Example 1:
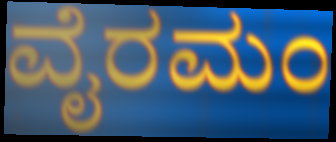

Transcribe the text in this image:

ವೈರಮಂ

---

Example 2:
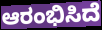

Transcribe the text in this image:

ಆರಂಭಿಸಿದೆ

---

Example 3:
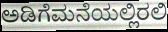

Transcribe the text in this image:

ಅಡಿಗೆಮನೆಯಲ್ಲಿರಲಿ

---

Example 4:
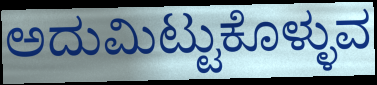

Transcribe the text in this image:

ಅದುಮಿಟ್ಟುಕೊಳ್ಳುವ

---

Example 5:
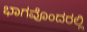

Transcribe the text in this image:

ಭಾಗವೊಂದರಲ್ಲಿ